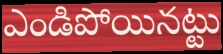
ఎండిపోయినట్టు